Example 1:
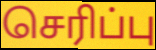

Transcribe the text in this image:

செரிப்பு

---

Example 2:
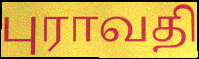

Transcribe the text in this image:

புராவதி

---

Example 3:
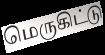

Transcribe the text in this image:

மெருகிட்டு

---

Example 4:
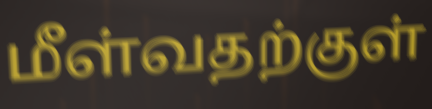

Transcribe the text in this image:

மீள்வதற்குள்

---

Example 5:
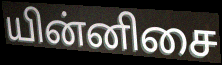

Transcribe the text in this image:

யின்னிசை